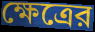
ক্ষেত্রের